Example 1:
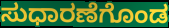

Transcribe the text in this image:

ಸುಧಾರಣೆಗೊಂಡ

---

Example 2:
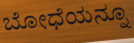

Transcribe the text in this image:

ಬೋಧೆಯನ್ನೂ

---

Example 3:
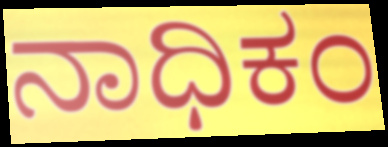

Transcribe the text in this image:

ನಾಧಿಕಂ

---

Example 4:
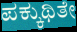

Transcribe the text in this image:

ಪಕ್ಕುಥಿತೇ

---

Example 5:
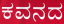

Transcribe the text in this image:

ಕವನದ